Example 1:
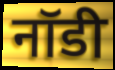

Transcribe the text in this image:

नॉडी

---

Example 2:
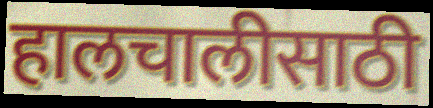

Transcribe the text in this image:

हालचालीसाठी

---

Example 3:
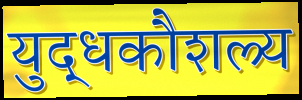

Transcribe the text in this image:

युद्धकौशल्य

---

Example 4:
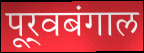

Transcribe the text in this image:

पूर्वबंगाल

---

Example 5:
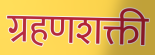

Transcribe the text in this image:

ग्रहणशक्ती